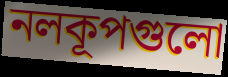
নলকূপগুলো